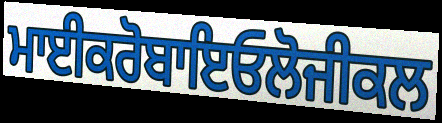
ਮਾਈਕਰੋਬਾਇਓਲੋਜੀਕਲ